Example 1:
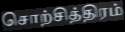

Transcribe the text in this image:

சொற்சித்திரம்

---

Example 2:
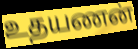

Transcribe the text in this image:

உதயணன்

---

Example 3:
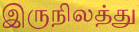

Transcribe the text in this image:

இருநிலத்து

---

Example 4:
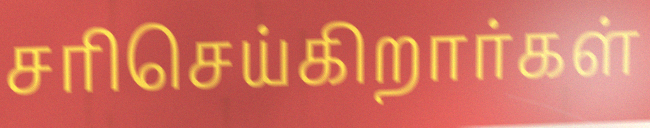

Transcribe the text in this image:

சரிசெய்கிறார்கள்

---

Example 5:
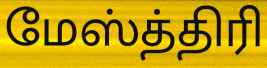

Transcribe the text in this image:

மேஸ்த்திரி